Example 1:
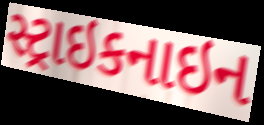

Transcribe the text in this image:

સ્ટ્રાઇકનાઇન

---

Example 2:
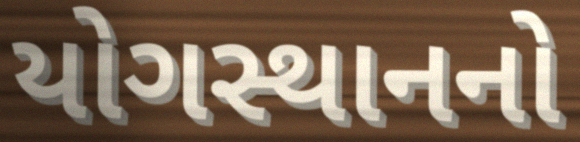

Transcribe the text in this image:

યોગસ્થાનનો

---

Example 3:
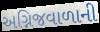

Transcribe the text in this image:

અગ્નિજવાળાની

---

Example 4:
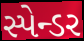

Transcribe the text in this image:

સ્પેન્ડર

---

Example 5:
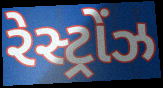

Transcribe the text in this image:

રેસ્ટ્રોંઝ